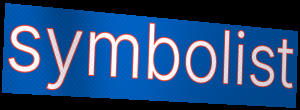
symbolist